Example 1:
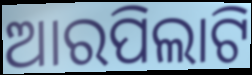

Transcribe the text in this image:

ଆରପିଲାଟି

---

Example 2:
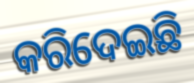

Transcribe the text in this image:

କରିଦେଇଛି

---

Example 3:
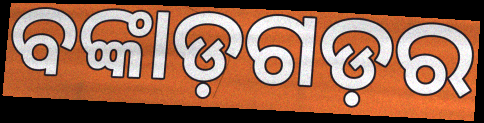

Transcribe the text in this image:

ବଙ୍କାଡ଼ଗଡ଼ର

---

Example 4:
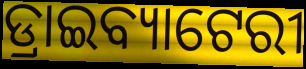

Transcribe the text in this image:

ଡ୍ରାଇବ୍ୟାଟେରୀ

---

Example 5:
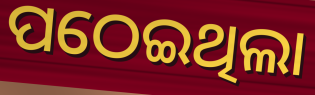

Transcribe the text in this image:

ପଠେଇଥିଲା